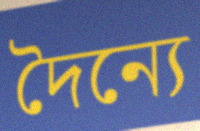
দৈন্যে